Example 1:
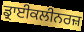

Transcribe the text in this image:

ਡ੍ਰਾਈਕਲੀਨਰਜ਼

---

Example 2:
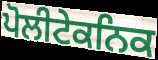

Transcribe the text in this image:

ਪੋਲੀਟੇਕਨਿਕ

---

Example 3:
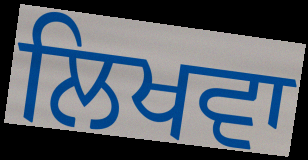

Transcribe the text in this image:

ਲਿਖਵਾ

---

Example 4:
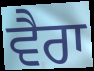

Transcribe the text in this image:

ਵੈਰਾ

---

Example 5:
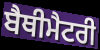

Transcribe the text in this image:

ਬੈਥੀਮੈਟਰੀ